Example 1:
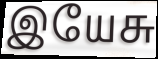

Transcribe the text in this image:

இயேசு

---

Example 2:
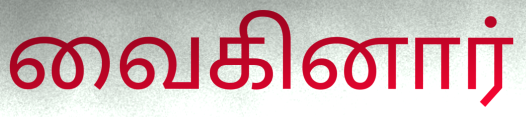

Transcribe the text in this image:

வைகினார்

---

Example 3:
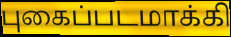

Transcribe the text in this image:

புகைப்படமாக்கி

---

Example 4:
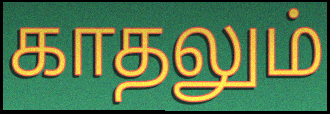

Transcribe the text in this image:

காதலும்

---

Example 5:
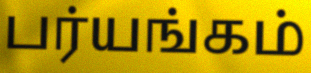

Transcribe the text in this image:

பர்யங்கம்